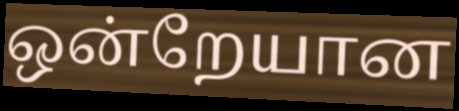
ஒன்றேயான